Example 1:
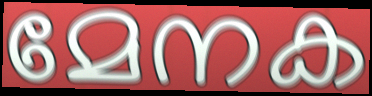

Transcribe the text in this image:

മേനക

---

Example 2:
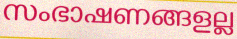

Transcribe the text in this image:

സംഭാഷണങ്ങളല്ല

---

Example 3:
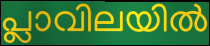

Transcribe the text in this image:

പ്ലാവിലയിൽ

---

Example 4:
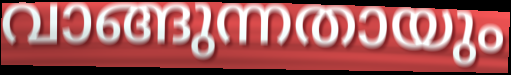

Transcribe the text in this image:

വാങ്ങുന്നതായും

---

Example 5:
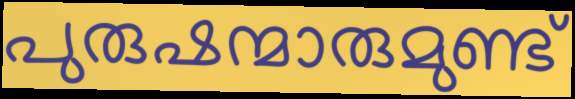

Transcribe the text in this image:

പുരുഷന്മാരുമുണ്ട്